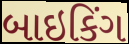
બાઇકિંગ